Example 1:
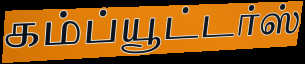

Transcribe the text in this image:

கம்ப்யூட்டர்ஸ்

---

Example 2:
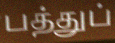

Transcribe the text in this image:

பத்துப்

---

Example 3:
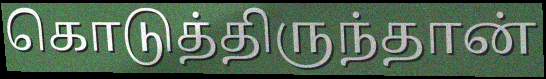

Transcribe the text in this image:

கொடுத்திருந்தான்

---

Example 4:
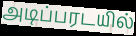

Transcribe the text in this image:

அடிப்பரடயில்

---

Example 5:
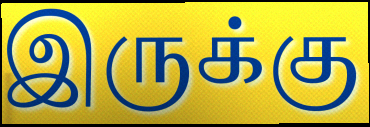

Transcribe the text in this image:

இருக்கு